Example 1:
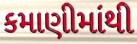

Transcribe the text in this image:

કમાણીમાંથી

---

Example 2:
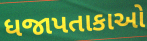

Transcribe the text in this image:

ધજાપતાકાઓ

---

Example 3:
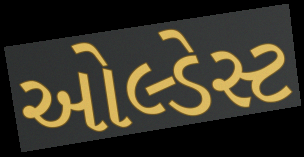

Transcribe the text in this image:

ઓલ્ડેસ્ટ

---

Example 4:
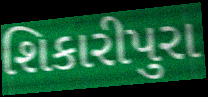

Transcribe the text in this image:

શિકારીપુરા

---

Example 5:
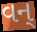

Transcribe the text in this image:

વન્